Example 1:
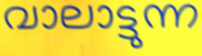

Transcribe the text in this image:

വാലാട്ടുന്ന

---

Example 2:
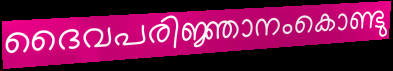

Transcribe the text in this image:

ദൈവപരിജ്ഞാനംകൊണ്ടു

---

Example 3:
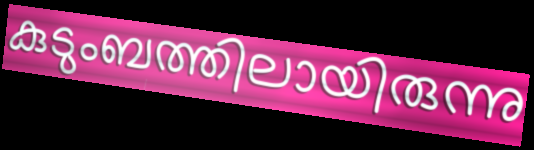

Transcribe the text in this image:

കുടുംബത്തിലായിരുന്നു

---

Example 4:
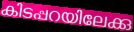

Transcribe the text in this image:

കിടപ്പറയിലേക്കു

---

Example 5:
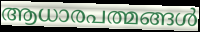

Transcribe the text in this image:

ആധാരപത്മങ്ങൾ